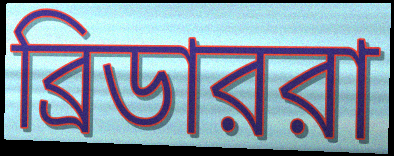
ব্রিডাররা